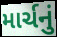
માર્ચનું